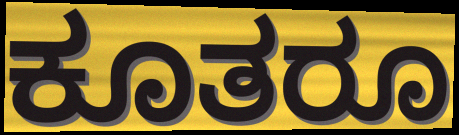
ಕೂತರೂ